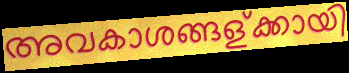
അവകാശങ്ങള്ക്കായി